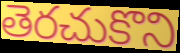
తెరచుకొని